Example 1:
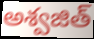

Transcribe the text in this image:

అశ్వజిత్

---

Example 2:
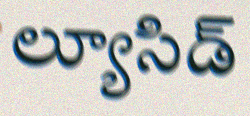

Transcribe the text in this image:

ల్యూసిడ్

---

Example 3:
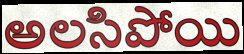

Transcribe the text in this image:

అలసిపోయి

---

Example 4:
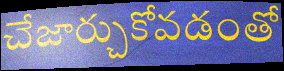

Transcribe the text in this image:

చేజార్చుకోవడంతో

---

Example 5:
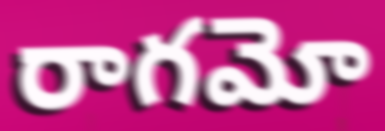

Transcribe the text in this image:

రాగమో